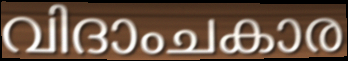
വിദാംചകാര